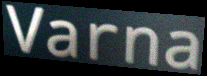
Varna